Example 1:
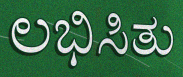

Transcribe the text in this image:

ಲಭಿಸಿತು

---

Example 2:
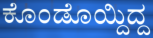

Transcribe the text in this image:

ಕೊಂಡೊಯ್ದಿದ್ದ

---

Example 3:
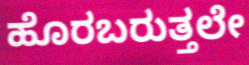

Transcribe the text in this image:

ಹೊರಬರುತ್ತಲೇ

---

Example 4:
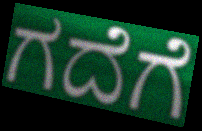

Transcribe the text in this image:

ಗದೆಗೆ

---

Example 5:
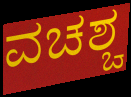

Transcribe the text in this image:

ವಚಶ್ಚ